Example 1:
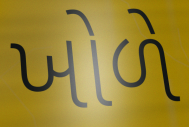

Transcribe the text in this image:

ખોળે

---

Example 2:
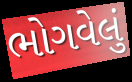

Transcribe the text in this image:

ભોગવેલું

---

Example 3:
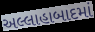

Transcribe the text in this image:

અલ્લાહાબાદમાં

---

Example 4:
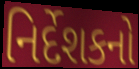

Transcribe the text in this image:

નિર્દેશકનો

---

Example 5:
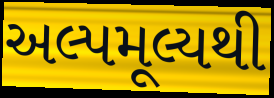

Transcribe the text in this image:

અલ્પમૂલ્યથી